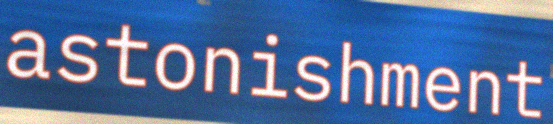
astonishment